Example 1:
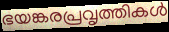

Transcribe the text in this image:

ഭയങ്കരപ്രവൃത്തികൾ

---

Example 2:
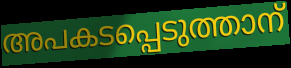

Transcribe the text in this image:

അപകടപ്പെടുത്താന്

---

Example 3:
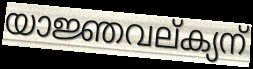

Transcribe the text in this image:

യാജ്ഞവല്ക്യന്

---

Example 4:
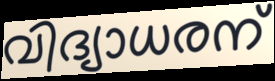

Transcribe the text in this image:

വിദ്യാധരന്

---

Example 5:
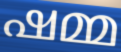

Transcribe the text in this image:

ഷമ്മ